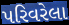
પરિવરેલા